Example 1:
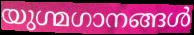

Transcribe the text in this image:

യുഗ്മഗാനങ്ങൾ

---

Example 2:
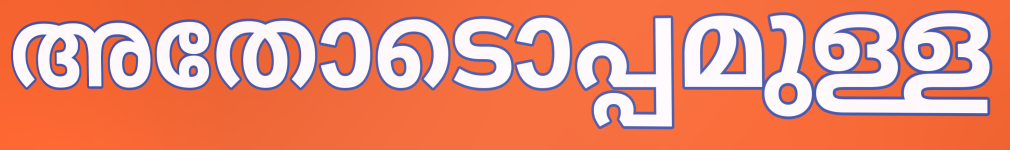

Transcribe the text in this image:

അതോടൊപ്പമുള്ള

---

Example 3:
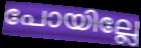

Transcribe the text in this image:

പോയില്ലേ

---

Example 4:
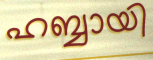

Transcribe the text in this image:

ഹബ്ബായി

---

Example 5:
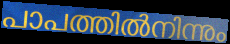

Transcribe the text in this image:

പാപത്തിൽനിന്നും